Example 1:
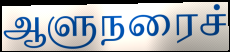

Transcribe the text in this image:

ஆளுநரைச்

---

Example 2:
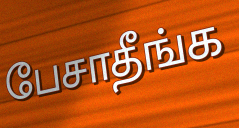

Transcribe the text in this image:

பேசாதீங்க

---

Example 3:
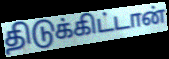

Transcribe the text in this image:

திடுக்கிட்டான்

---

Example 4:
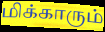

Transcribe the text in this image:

மிக்காரும்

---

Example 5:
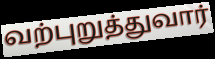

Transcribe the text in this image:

வற்புறுத்துவார்